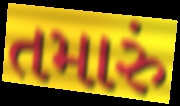
તમારું